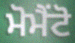
ਮੋਮੈਂਟੋ